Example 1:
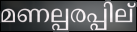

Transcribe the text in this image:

മണല്പരപ്പില്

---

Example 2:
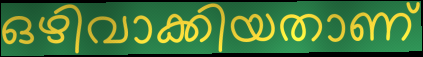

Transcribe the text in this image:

ഒഴിവാക്കിയതാണ്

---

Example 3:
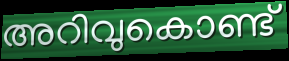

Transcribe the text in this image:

അറിവുകൊണ്ട്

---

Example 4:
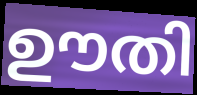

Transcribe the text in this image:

ഊതി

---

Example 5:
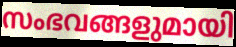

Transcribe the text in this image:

സംഭവങ്ങളുമായി